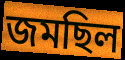
জমছিল